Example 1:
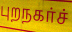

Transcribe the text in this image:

புறநகர்ச்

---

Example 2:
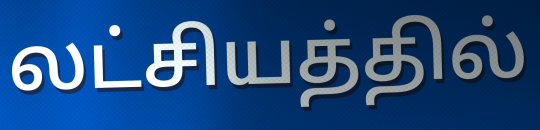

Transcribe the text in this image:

லட்சியத்தில்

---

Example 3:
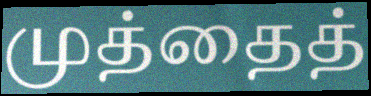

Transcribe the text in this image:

முத்தைத்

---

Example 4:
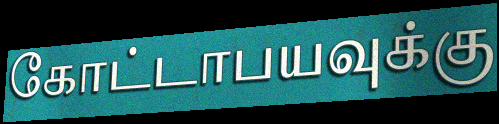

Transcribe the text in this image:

கோட்டாபயவுக்கு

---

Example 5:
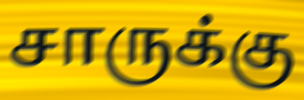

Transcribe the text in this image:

சாருக்கு